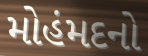
મોહંમદનો